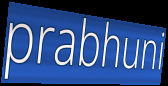
prabhuni